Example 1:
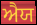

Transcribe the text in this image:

ਐਯ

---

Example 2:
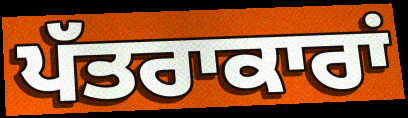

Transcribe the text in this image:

ਪੱਤਰਾਕਾਰਾਂ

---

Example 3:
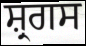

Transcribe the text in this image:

ਸ਼੍ਰਗਸ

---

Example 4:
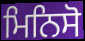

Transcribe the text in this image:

ਮਿਨਿਸੋ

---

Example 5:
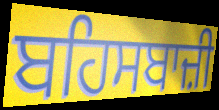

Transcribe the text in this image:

ਬਹਿਸਬਾਜ਼ੀ